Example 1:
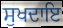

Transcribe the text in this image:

ਸੁਖਦਾਇ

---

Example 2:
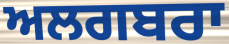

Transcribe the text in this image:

ਅਲਗਬਰਾ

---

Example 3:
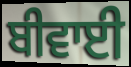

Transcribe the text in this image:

ਬੀਵਾਈ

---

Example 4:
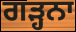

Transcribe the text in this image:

ਗੜ੍ਹਨਾ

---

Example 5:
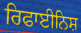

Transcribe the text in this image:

ਰਿਫਾਈਨਿਸ਼